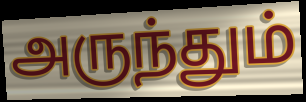
அருந்தும்